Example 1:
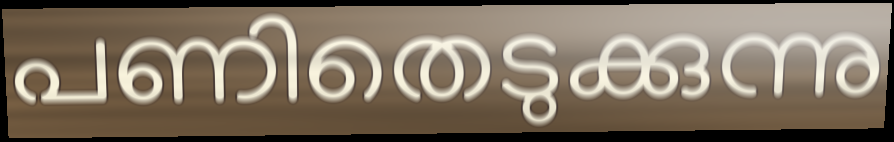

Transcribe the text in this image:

പണിതെടുക്കുന്നു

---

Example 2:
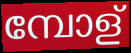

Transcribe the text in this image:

മ്പോള്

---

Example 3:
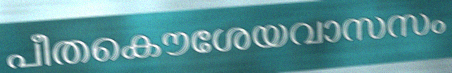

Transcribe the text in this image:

പീതകൌശേയവാസസം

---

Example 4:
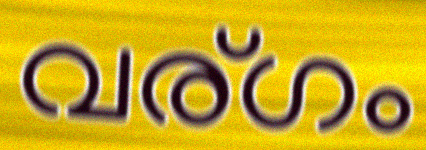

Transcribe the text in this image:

വര്ഗം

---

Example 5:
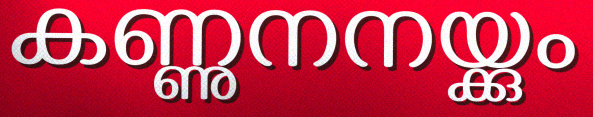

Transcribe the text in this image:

കണ്ണുനനയ്ക്കും